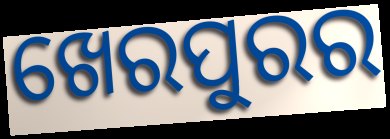
ଖେରପୁରର